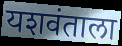
यशवंताला